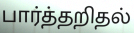
பார்த்தறிதல்